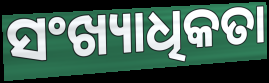
ସଂଖ୍ୟାଧିକତା